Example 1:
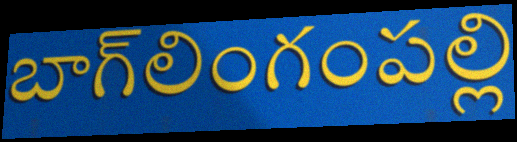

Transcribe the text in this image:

బాగ్‌లింగంపల్లి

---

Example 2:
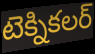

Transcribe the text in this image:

టెక్నికలర్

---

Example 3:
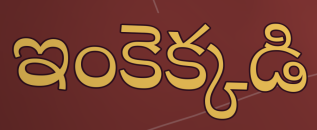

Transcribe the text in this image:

ఇంకెక్కడి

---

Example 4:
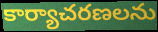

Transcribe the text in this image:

కార్యాచరణలను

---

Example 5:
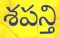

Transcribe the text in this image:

శపన్తి